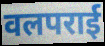
वलपराई